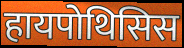
हायपोथिसिस